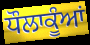
ਧੌਲਾਕੂੰਆਂ